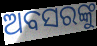
ଅବସରଙ୍କୁ